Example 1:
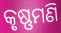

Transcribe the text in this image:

କୃଷ୍ଣମଣି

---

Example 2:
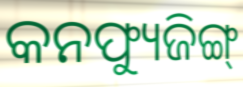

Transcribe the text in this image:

କନଫ୍ୟୁଜିଙ୍ଗ୍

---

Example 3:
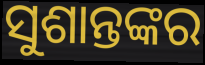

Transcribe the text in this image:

ସୁଶାନ୍ତଙ୍କର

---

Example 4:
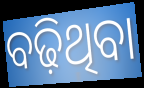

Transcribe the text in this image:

ବଢ଼ିଥିବା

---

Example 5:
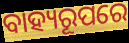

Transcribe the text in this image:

ବାହ୍ୟରୂପରେ